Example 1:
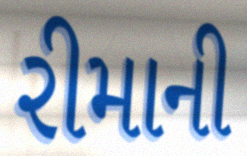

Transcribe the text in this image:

રીમાની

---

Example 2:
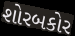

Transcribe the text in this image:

શોરબકોર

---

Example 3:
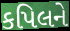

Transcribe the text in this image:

કપિલને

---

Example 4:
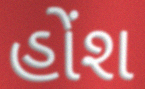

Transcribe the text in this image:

હોંશ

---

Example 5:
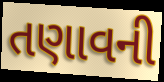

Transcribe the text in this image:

તણાવની